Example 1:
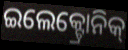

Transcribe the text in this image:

ଇଲେକ୍ଟ୍ରୋନିକ୍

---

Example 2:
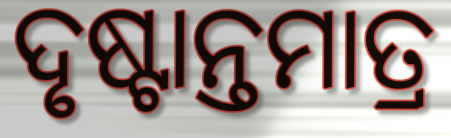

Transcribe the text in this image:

ଦୃଷ୍ଟାନ୍ତମାତ୍ର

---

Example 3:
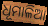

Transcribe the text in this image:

ଧୂମାଳିଆ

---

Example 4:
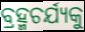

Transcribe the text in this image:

ବ୍ରହ୍ମଚର୍ଯ୍ୟକୁ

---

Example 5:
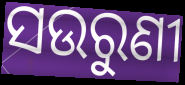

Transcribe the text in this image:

ସଉରୁଣୀ